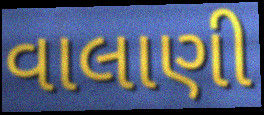
વાલાણી